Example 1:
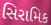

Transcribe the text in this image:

સિરામિક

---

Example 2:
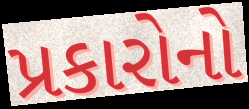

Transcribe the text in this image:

પ્રકારોનો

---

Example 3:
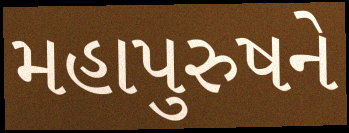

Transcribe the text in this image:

મહાપુરુષને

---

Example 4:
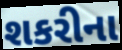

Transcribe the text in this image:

શકરીના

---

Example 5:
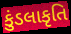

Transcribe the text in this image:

કુંડલાકૃતિ